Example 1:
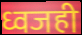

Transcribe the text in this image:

ध्वजही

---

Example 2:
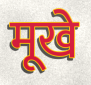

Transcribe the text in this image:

मूखे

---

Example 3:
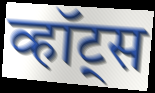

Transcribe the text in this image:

व्हॉट्‌स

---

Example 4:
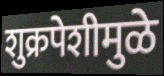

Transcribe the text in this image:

शुक्रपेशीमुळे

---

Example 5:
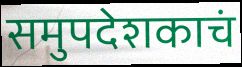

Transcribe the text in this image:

समुपदेशकाचं